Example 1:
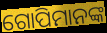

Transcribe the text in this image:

ଗୋପିମାନଙ୍କ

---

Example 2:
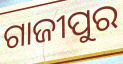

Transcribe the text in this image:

ଗାଜୀପୁର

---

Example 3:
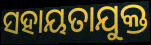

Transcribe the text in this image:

ସହାୟତାଯୁକ୍ତ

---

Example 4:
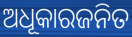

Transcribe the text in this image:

ଅଧୂକାରଜନିତ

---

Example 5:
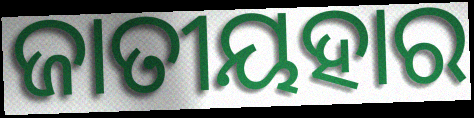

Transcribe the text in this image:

ଜାତୀୟହାର